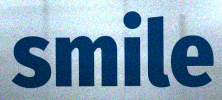
smile